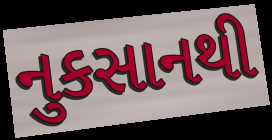
નુકસાનથી